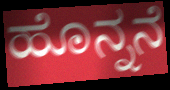
ಹೊನ್ನನೆ